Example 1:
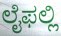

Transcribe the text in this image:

ಲೈಫಲ್ಲಿ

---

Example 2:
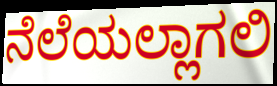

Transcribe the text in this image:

ನೆಲೆಯಲ್ಲಾಗಲಿ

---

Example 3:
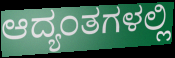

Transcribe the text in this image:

ಆದ್ಯಂತಗಳಲ್ಲಿ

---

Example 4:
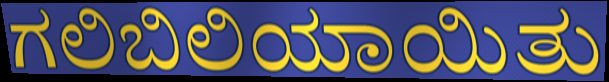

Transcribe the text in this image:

ಗಲಿಬಿಲಿಯಾಯಿತು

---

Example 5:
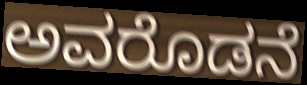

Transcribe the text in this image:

ಅವರೊಡನೆ